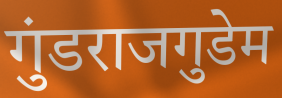
गुंडराजगुडेम